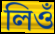
লিওঁ